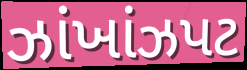
ઝાંખાંઝપટ